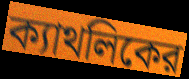
ক্যাথলিকের